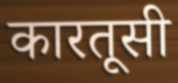
कारतूसी